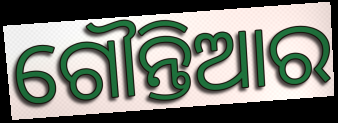
ଗୌନ୍ତିଆର